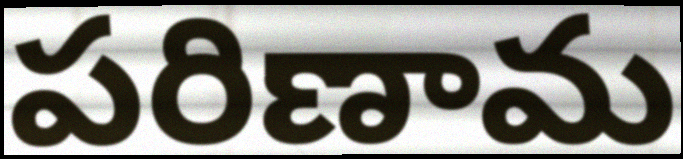
పరిణామ